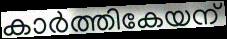
കാർത്തികേയന്